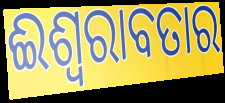
ଈଶ୍ୱରାବତାର